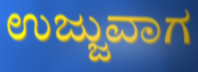
ಉಜ್ಜುವಾಗ